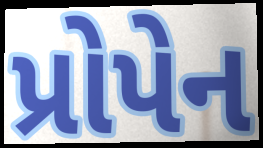
પ્રોપેન